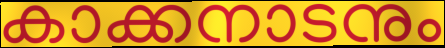
കാക്കനാടനും